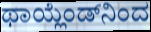
ಥಾಯ್ಲೆಂಡ್‌ನಿಂದ